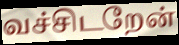
வச்சிடறேன்